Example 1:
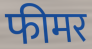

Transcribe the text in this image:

फीमर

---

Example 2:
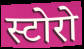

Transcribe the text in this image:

स्टोरो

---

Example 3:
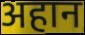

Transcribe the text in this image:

अहान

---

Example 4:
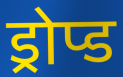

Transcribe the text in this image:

ड्रोप्ड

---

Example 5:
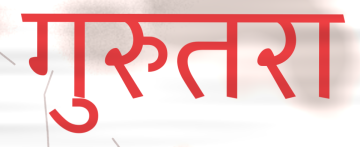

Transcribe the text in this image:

गुरुतरा